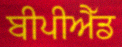
ਬੀਪੀਐੱਡ